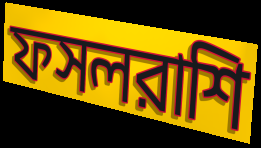
ফসলরাশি